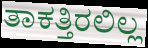
ತಾಕತ್ತಿರಲಿಲ್ಲ